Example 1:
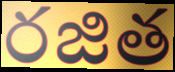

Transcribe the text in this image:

రజిత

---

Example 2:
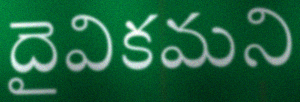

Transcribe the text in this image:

దైవికమని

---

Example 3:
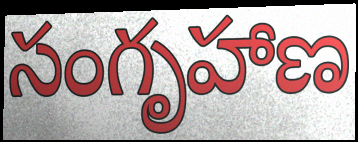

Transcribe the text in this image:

సంగృహాణ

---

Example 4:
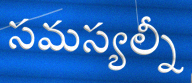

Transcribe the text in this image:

సమస్యల్నీ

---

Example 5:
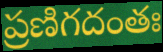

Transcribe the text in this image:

ప్రణిగదంతః